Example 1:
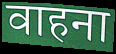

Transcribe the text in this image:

वाहना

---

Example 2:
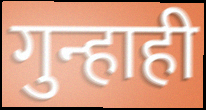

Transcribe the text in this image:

गुन्हाही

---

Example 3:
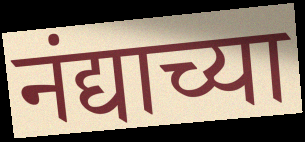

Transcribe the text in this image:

नंद्याच्या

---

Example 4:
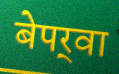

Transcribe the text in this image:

बेपर्वा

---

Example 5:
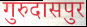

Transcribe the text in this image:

गुरुदासपुर